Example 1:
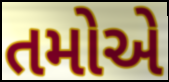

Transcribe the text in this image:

તમોએ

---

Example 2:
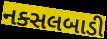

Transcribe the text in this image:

નક્સલબાડી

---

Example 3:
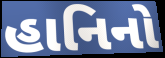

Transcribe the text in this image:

હાનિનો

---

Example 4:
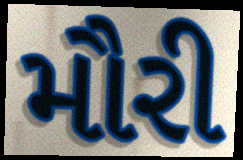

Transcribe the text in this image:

મૌરી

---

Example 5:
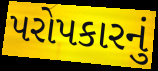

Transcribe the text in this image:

પરોપકારનું